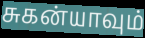
சுகன்யாவும்